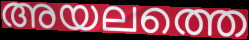
അയലത്തെ